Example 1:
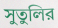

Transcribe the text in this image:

সুতুলির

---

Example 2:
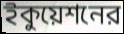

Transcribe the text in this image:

ইকুয়েশনের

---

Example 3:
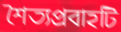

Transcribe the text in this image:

শৈত্যপ্রবাহটি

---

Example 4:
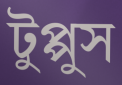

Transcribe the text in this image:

টুপ্পুস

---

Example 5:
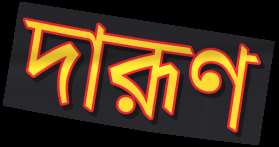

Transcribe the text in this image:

দারূণ